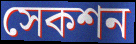
সেকশন